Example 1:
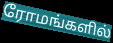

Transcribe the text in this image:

ரோமங்களில்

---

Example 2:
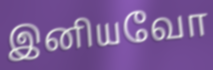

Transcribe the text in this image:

இனியவோ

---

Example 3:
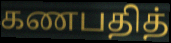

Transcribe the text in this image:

கணபதித்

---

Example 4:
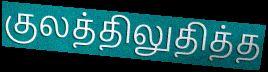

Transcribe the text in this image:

குலத்திலுதித்த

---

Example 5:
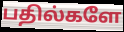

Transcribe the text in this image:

பதில்களே